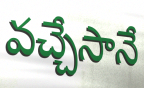
వచ్చేసానే